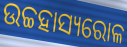
ଉଚ୍ଚହାସ୍ୟରୋଳ